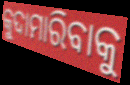
କୁଦାମାରିବାକୁ